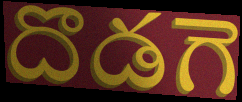
దొడగె